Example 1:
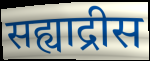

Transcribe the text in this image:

सह्याद्रीस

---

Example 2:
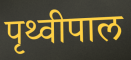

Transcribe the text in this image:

पृथ्वीपाल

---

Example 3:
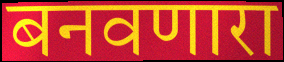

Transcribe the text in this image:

बनवणारा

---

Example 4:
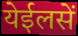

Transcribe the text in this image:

येईलसें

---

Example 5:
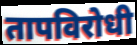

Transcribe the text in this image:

तापविरोधी